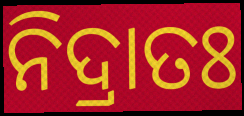
ନିଦ୍ରାତଃ